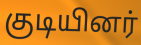
குடியினர்